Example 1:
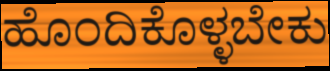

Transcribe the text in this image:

ಹೊಂದಿಕೊಳ್ಳಬೇಕು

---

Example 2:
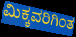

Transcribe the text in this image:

ಮಿಕ್ಕವರಿಗಿಂತ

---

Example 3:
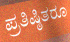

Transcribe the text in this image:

ಪ್ರತಿಷ್ಠಿತರೂ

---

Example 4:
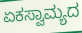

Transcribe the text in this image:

ಏಕಸ್ವಾಮ್ಯದ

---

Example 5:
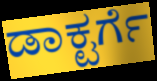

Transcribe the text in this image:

ಡಾಕ್ಟರ್ಗೆ